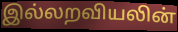
இல்லறவியலின்